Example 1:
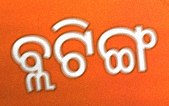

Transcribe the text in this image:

ବ୍ଲଟିଙ୍ଗ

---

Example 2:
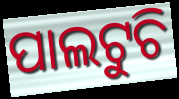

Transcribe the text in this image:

ପାଲଟୁଚି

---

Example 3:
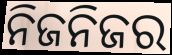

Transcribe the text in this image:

ନିଜନିଜର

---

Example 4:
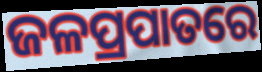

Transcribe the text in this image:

ଜଳପ୍ରପାତରେ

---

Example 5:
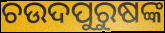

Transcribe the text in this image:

ଚଉଦପୁରୁଷଙ୍କ